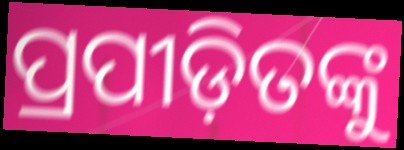
ପ୍ରପୀଡ଼ିତଙ୍କୁ